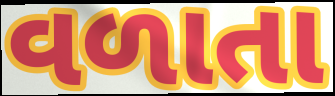
વળાતા